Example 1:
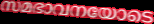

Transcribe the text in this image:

സമഭാവനയോടെ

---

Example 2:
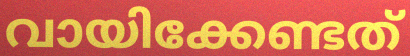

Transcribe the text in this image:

വായിക്കേണ്ടത്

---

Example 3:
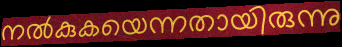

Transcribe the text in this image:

നൽകുകയെന്നതായിരുന്നു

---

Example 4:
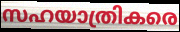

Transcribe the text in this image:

സഹയാത്രികരെ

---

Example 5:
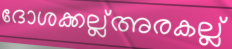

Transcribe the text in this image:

ദോശക്കല്ല്അരകല്ല്